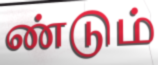
ண்டும்